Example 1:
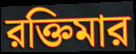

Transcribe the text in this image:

রক্তিমার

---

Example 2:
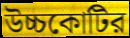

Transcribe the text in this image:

উচ্চকোটির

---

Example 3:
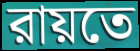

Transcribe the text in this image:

রায়তে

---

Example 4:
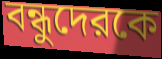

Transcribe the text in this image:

বন্ধুদেরকে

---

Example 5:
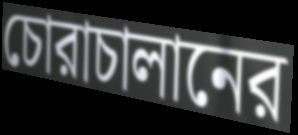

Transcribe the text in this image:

চোরাচালানের